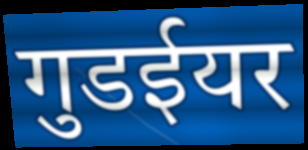
गुडईयर